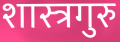
शास्त्रगुरु